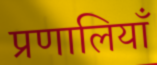
प्रणालियाँ